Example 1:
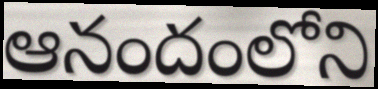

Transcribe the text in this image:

ఆనందంలోని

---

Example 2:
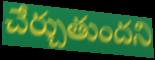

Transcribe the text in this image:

చేర్చుతుందని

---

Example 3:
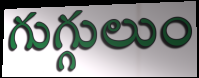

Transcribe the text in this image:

గుగ్గులుం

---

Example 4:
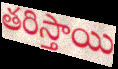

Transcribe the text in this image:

తరిస్తాయి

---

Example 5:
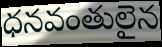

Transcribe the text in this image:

ధనవంతులైన